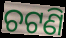
ଚଟଣି